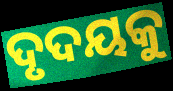
ଦୃଦୟକୁ